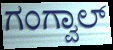
ಗಂಗ್ವಾಲ್